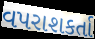
વપરાશકર્તા